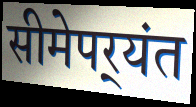
सीमेपर्यंत